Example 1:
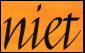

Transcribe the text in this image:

niet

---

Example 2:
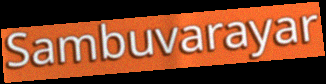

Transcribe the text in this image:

Sambuvarayar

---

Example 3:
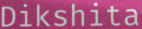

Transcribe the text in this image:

Dikshita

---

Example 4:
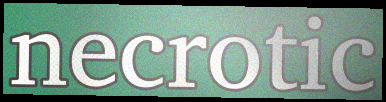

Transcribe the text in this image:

necrotic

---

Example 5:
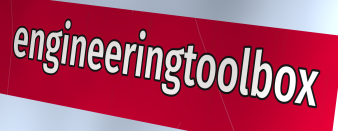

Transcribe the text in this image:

engineeringtoolbox